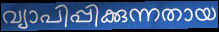
വ്യാപിപ്പിക്കുന്നതായ